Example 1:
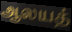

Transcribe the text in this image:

ஆலயத்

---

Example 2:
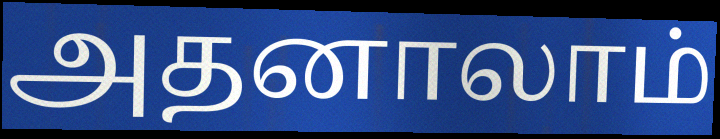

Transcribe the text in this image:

அதனாலாம்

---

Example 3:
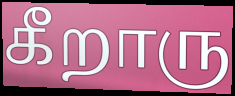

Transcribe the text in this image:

கீறாரு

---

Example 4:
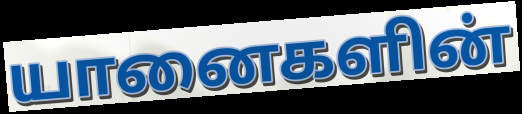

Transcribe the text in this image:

யானைகளின்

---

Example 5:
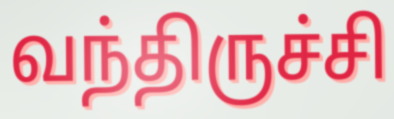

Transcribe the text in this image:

வந்திருச்சி